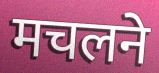
मचलने